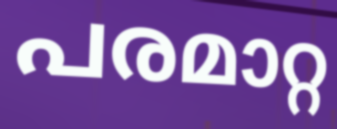
പരമാറ്റ